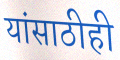
यांसाठीही